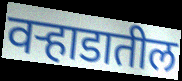
वऱ्हाडातील